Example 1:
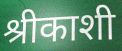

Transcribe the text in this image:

श्रीकाशी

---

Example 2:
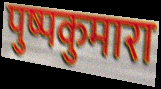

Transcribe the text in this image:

पुष्पकुमारा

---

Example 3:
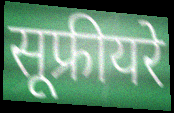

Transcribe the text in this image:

सूफ्रीयरे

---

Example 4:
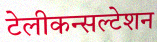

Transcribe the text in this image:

टेलीकन्सल्टेशन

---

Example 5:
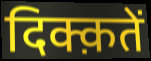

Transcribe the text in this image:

दिक्क़तें